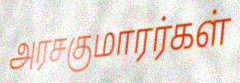
அரசகுமாரர்கள்